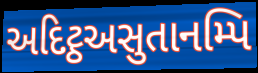
અદિટ્ઠઅસુતાનમ્પિ